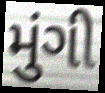
મુંગી